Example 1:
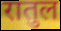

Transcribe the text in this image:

रातुल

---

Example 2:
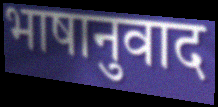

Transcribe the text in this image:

भाषानुवाद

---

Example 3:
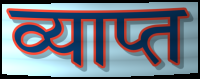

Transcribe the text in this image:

व्‍याप्‍त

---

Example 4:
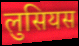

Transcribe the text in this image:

लुसियस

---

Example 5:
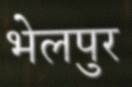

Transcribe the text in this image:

भेलपुर